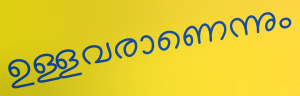
ഉള്ളവരാണെന്നും